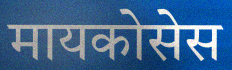
मायकोसेस